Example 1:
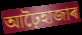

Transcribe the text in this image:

আঢ়ৈহাজাৰ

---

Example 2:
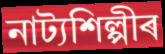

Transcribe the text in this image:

নাট্যশিল্পীৰ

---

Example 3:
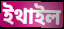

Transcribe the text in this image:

ইথাইল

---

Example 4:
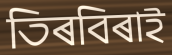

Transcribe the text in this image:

তিৰবিৰাই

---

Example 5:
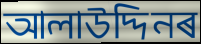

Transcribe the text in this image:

আলাউদ্দিনৰ